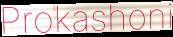
Prokashoni